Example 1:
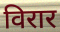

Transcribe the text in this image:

विरार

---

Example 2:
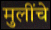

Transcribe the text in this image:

मुलींचे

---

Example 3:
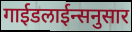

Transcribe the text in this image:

गाईडलाईन्सनुसार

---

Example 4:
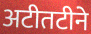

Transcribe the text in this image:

अटीतटीने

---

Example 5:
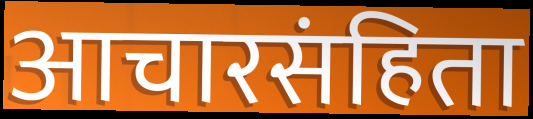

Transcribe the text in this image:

आचारसंहिता